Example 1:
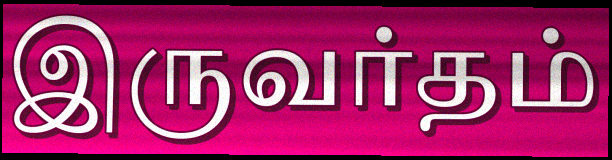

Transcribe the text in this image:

இருவர்தம்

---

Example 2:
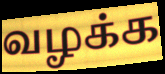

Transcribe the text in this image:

வழக்க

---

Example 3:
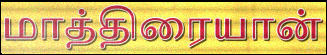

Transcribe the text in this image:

மாத்திரையான்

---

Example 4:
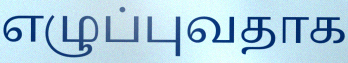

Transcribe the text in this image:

எழுப்புவதாக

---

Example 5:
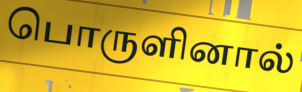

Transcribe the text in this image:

பொருளினால்